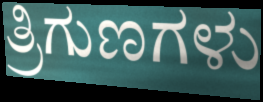
ತ್ರಿಗುಣಗಳು